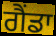
ਗੈਂਡਾ